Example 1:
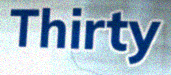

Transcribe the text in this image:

Thirty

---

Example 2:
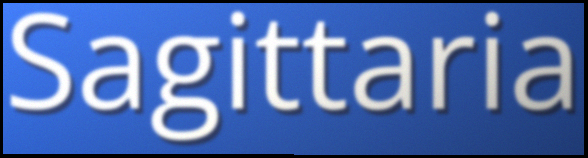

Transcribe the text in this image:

Sagittaria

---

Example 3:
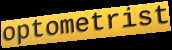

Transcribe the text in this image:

optometrist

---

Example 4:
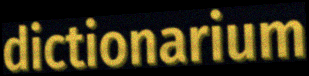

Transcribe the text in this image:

dictionarium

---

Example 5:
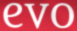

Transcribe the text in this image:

evo